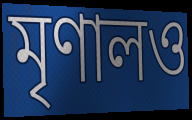
মৃণালও